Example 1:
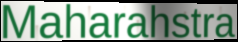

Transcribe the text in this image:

Maharahstra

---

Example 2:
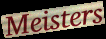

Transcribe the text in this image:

Meisters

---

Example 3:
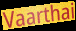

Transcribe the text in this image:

Vaarthai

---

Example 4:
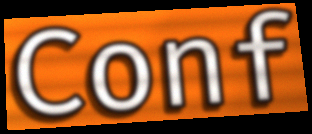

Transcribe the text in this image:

Conf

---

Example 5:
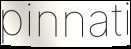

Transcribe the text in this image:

pinnati